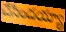
చేసిందయ్యా